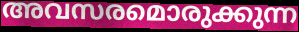
അവസരമൊരുക്കുന്ന